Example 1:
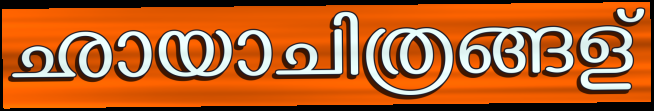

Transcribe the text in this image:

ഛായാചിത്രങ്ങള്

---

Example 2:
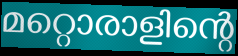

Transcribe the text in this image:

മറ്റൊരാളിന്റെ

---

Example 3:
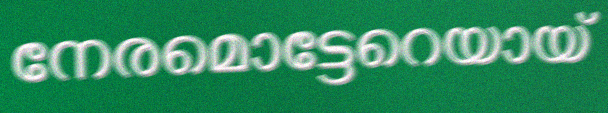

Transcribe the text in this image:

നേരമൊട്ടേറെയായ്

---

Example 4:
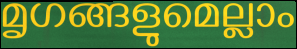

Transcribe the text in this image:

മൃഗങ്ങളുമെല്ലാം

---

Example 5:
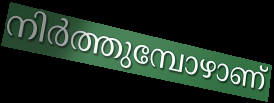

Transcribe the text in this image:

നിർത്തുമ്പോഴാണ്